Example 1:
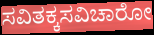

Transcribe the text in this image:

ಸವಿತಕ್ಕಸವಿಚಾರೋ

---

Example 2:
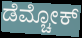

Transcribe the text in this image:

ಡೆಮ್ಚೋಕ್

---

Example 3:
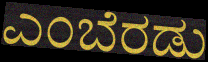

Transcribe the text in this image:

ಎಂಬೆರಡು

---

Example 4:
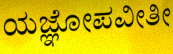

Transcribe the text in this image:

ಯಜ್ಞೋಪವೀತೀ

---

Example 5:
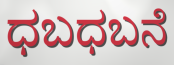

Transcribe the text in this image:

ಧಬಧಬನೆ